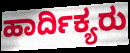
ಹಾರ್ದಿಕ್ಯರು